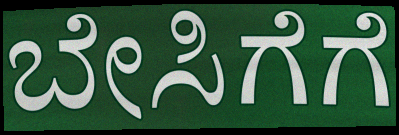
ಬೇಸಿಗೆಗೆ